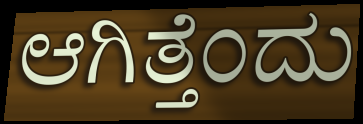
ಆಗಿತ್ತೆಂದು